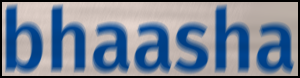
bhaasha